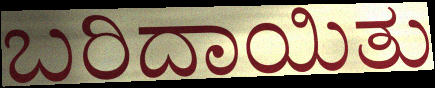
ಬರಿದಾಯಿತು